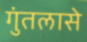
गुंतलासे